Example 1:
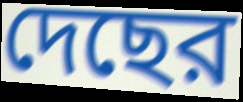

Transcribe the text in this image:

দেছের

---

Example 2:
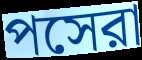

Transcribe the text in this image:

পসেরা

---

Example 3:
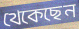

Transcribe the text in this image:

থেকেছেন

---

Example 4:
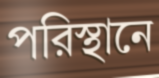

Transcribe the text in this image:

পরিস্থানে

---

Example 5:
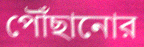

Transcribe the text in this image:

পৌঁছানোর